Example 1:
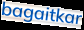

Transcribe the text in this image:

bagaitkar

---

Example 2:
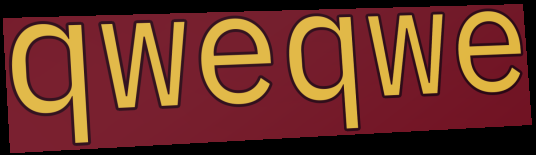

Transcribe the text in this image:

qweqwe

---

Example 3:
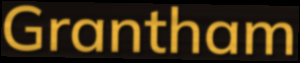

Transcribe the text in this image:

Grantham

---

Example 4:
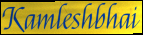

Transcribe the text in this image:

Kamleshbhai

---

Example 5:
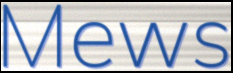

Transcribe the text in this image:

Mews